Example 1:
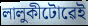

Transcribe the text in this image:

লালুকীটোৱেই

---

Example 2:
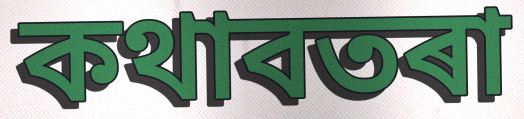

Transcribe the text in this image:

কথাবতৰা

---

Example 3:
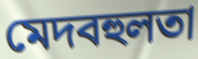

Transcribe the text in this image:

মেদবহুলতা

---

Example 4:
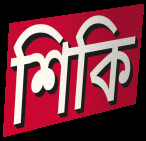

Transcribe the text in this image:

শিকি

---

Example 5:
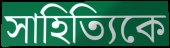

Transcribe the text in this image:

সাহিত্যিকে